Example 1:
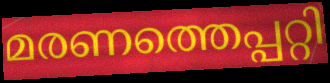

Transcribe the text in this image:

മരണത്തെപ്പറ്റി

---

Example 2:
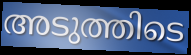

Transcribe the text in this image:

അടുത്തിടെ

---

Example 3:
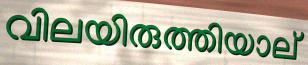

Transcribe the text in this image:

വിലയിരുത്തിയാല്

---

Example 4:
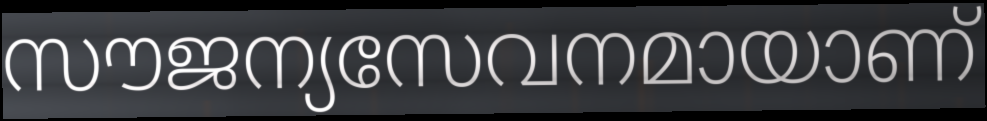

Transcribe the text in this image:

സൗജന്യസേവനമായാണ്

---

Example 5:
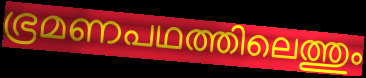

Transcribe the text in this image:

ഭ്രമണപഥത്തിലെത്തും